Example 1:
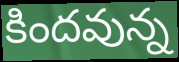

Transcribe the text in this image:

కిందవున్న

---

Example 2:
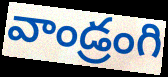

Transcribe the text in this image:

వాండ్రంగి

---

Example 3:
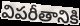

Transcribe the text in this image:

విపరీతానికి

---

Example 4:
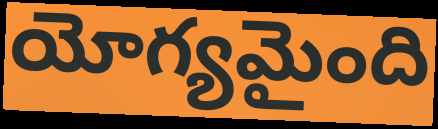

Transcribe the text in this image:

యోగ్యమైంది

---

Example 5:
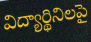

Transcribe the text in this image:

విద్యార్థినిలపై